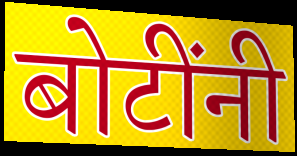
बोटींनी